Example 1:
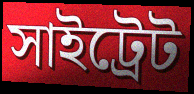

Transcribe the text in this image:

সাইট্রেট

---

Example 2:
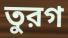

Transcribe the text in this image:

তুরগ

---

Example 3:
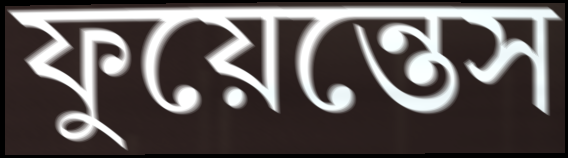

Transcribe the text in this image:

ফুয়েন্তেস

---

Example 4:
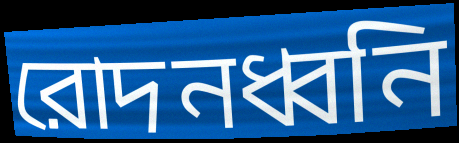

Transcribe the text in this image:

রোদনধ্বনি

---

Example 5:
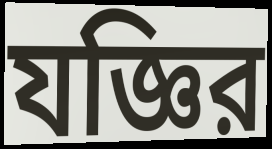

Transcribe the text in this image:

যজ্ঞির